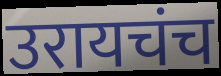
उरायचंच